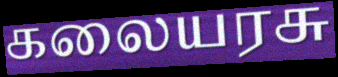
கலையரசு